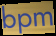
bpm